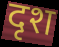
दृश